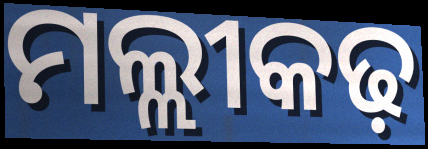
ମଲ୍ଲୀକଢ଼